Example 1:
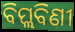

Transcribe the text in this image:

ବିପ୍ଲବିଣୀ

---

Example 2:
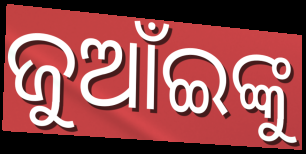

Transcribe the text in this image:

ଜୁଆଁଇଙ୍କୁ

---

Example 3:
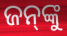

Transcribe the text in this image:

ଜନ୍‍ଙ୍କୁ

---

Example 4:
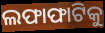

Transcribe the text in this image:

ଲଫାଫାଟିକୁ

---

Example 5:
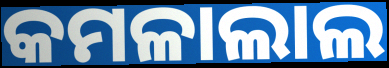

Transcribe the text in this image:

କମଳାଲାଲ